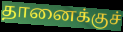
தானைக்குச்